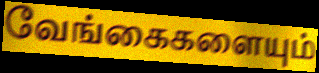
வேங்கைகளையும்